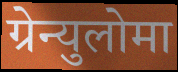
ग्रेन्युलोमा